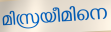
മിസ്രയീമിനെ